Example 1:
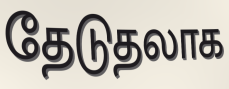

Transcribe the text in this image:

தேடுதலாக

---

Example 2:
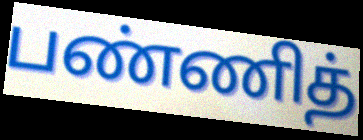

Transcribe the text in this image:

பண்ணித்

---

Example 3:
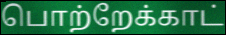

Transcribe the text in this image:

பொற்றேக்காட்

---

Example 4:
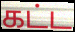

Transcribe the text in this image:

கட்ட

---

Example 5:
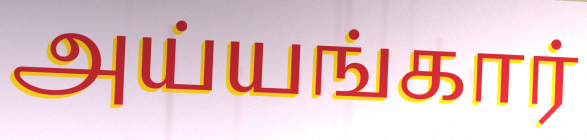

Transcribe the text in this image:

அய்யங்கார்